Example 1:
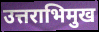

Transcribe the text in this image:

उत्तराभिमुख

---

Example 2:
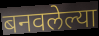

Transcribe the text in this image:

बनवलेल्या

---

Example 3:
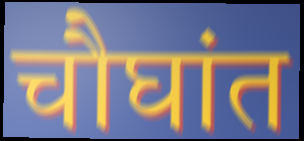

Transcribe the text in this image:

चौघांत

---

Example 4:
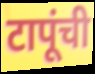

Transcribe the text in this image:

टापूंची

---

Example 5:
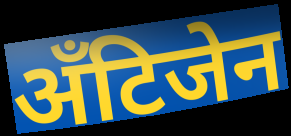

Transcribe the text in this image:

अँटिजेन